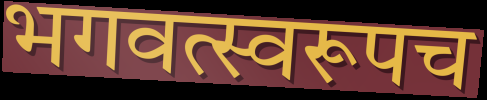
भगवत्स्वरूपच